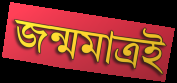
জন্মমাত্রই